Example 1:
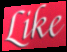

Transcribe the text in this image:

Like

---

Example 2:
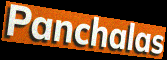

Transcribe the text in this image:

Panchalas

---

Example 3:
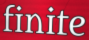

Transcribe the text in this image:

finite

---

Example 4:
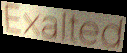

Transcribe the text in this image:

Exalted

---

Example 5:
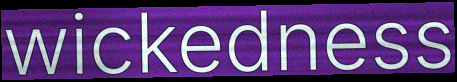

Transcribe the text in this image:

wickedness